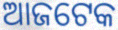
ଆଜଟେକ